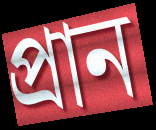
প্রান